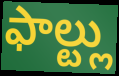
ఫాల్ట్లు